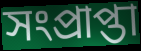
সংপ্রাপ্তা